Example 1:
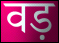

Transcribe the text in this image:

वड़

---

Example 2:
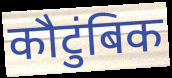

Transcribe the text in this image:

कौटुंबिक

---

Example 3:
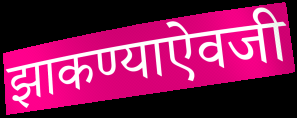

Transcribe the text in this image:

झाकण्याऐवजी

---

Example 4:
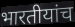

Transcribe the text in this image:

भारतीयांच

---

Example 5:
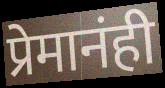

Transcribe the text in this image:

प्रेमानंही